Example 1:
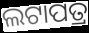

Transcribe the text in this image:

ଲଟାପତ୍ର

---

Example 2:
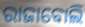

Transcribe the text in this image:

ରାଜାବୋଲି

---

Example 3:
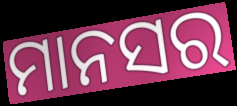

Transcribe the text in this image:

ମାନସର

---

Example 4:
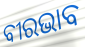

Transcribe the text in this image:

ବୀରଭାବ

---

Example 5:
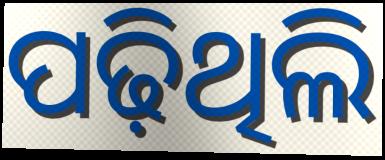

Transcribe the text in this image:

ପଢ଼ିଥିଲି